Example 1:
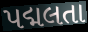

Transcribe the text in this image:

પદ્મલતા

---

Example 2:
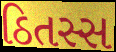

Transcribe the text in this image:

ઠિતસ્સ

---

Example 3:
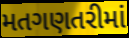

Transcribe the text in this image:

મતગણતરીમાં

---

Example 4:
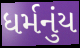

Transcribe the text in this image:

ધર્મનુંય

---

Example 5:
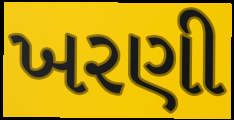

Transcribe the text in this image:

ખરણી